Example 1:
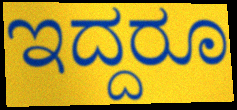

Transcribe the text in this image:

ಇದ್ದರೂ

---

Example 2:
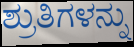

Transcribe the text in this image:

ಶ್ರುತಿಗಳನ್ನು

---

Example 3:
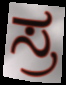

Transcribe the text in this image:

ಸ್ರ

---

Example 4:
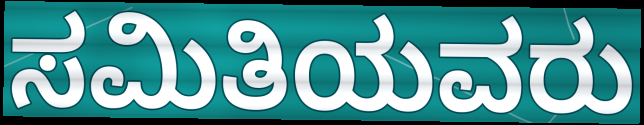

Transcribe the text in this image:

ಸಮಿತಿಯವರು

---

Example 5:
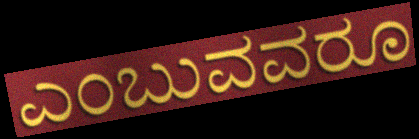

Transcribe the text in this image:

ಎಂಬುವವರೂ